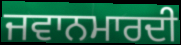
ਜਵਾਨਮਾਰਦੀ